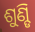
ଶୁଣ୍ଡି